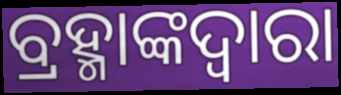
ବ୍ରହ୍ମାଙ୍କଦ୍ୱାରା